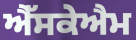
ਐੱਸਕੇਐਮ